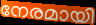
നേരമായി